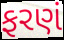
ફરણં